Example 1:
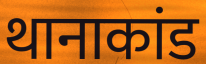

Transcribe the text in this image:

थानाकांड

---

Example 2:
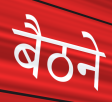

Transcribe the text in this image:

बैठने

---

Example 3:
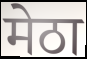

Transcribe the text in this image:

मेठा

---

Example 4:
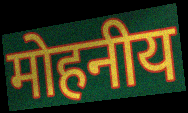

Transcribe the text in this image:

मोहनीय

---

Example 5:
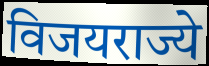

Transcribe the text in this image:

विजयराज्ये